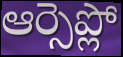
ఆర్సెప్లో